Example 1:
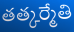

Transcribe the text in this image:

తత్కర్మేతి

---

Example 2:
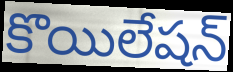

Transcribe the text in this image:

కొయిలేషన్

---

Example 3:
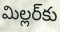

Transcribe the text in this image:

మిల్లర్‌కు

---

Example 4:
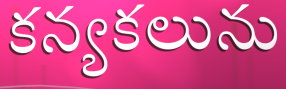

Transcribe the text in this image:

కన్యకలును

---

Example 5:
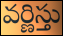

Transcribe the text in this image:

వర్ణిస్తు